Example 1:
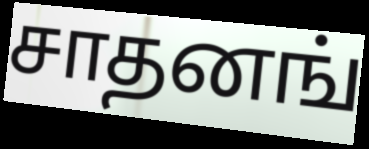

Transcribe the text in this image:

சாதனங்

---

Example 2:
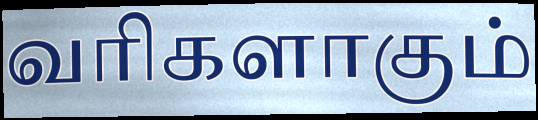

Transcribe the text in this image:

வரிகளாகும்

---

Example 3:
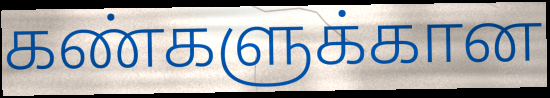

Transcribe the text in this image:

கண்களுக்கான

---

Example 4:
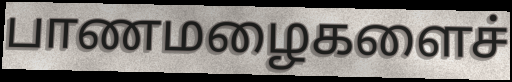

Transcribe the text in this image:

பாணமழைகளைச்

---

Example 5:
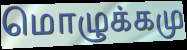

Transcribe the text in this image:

மொழுக்கமு